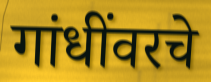
गांधींवरचे